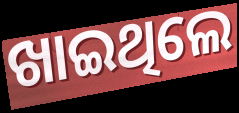
ଖାଇଥିଲେ